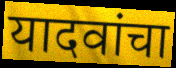
यादवांचा